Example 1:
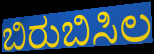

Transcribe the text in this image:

ಬಿರುಬಿಸಿಲ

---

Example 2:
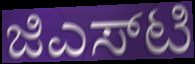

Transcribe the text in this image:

ಜಿಎಸ್‌ಟಿ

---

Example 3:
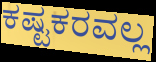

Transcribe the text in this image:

ಕಷ್ಟಕರವಲ್ಲ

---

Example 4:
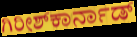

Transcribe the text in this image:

ಗಿರೀಶ್‌ಕಾರ್ನಾಡ್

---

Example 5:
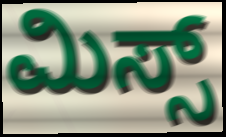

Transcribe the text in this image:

ಮಿಸ್ಸ್